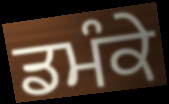
ਡਮੰਕੇ